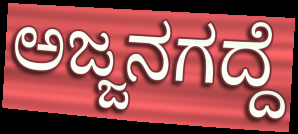
ಅಜ್ಜನಗದ್ದೆ